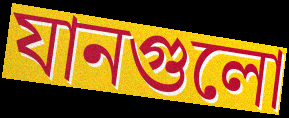
যানগুলো